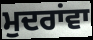
ਮੁਦਰਾਂਵਾ